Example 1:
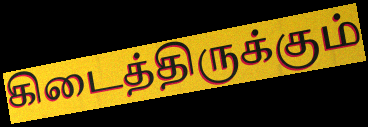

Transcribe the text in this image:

கிடைத்திருக்கும்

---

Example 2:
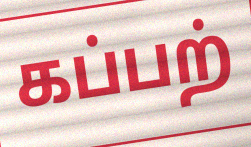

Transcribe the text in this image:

கப்பற்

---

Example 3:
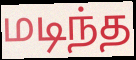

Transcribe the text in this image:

மடிந்த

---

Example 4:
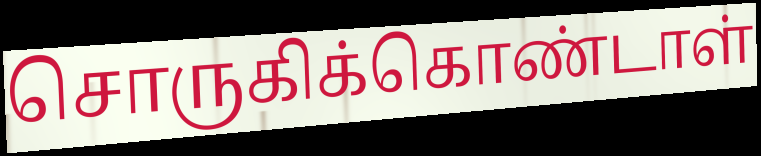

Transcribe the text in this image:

சொருகிக்கொண்டாள்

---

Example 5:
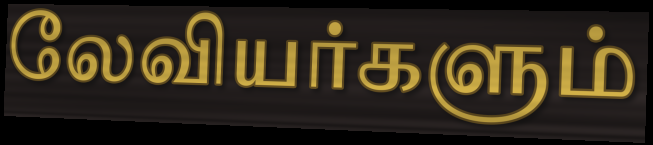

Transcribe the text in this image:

லேவியர்களும்